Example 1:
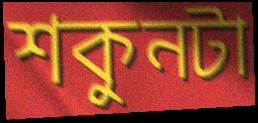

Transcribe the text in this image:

শকুনটা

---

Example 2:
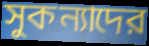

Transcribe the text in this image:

সুকন্যাদের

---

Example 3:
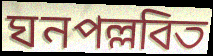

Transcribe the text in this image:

ঘনপল্লবিত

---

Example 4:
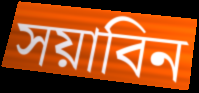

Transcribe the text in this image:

সয়াবিন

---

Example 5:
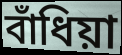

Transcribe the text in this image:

বাঁধিয়া